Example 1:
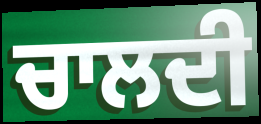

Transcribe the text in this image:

ਚਾਲਦੀ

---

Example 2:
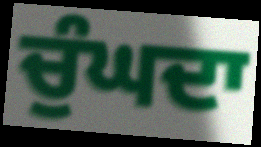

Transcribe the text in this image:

ਚੁੰਘਦਾ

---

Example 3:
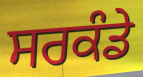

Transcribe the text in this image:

ਸਰਕੰਡੇ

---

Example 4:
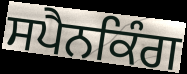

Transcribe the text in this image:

ਸਪੈਨਕਿੰਗ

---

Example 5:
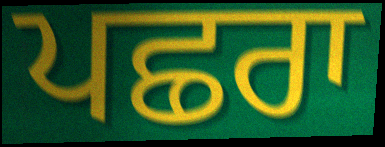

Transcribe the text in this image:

ਪਛਰਾ